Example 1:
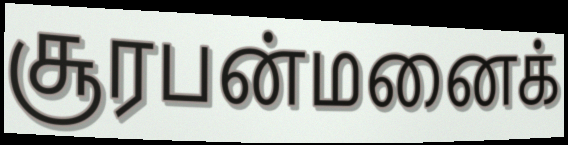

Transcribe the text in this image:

சூரபன்மனைக்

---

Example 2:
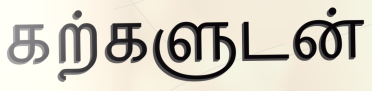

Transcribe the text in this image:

கற்களுடன்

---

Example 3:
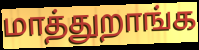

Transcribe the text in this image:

மாத்துறாங்க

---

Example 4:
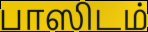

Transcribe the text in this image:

பாஸிடம்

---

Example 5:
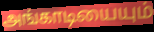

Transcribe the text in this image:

அங்காடியையும்